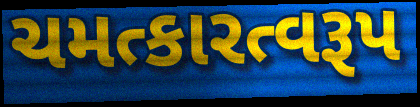
ચમત્કારત્વરૂપ